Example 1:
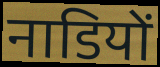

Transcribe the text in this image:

नाडियों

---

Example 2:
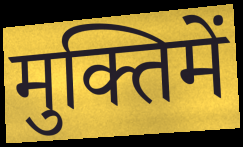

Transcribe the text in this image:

मुक्तिमें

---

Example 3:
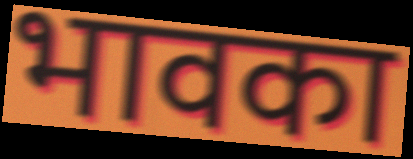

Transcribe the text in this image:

भावका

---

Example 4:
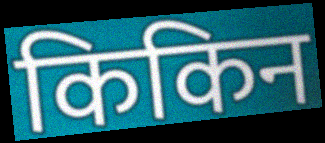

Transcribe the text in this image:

किकिन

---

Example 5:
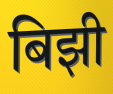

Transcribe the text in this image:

बिझी